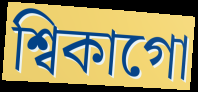
শ্বিকাগো